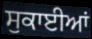
ਸੁਕਾਈਆਂ